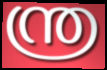
ന്ത്ര